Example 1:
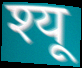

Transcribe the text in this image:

श्यू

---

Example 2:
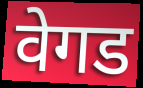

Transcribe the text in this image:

वेगड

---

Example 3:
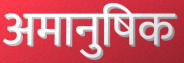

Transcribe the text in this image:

अमानुषिक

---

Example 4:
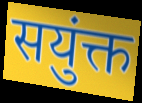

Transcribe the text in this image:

सयुंक्त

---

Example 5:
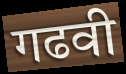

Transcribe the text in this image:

गढवी